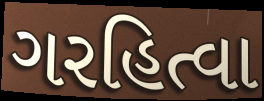
ગરહિત્વા